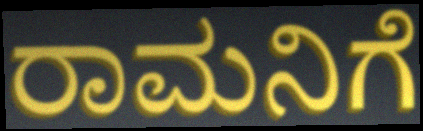
ರಾಮನಿಗೆ